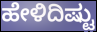
ಹೇಳಿದಿಷ್ಟು